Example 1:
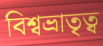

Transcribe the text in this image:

বিশ্বভ্রাতৃত্ব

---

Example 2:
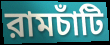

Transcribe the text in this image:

রামচাঁটি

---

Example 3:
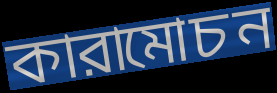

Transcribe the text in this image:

কারামোচন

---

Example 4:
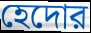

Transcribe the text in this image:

হেদোর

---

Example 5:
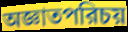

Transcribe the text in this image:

অজ্ঞাতপরিচয়